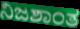
ನಿಜಶಾಂತ